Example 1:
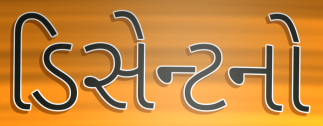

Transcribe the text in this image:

ડિસેન્ટનો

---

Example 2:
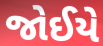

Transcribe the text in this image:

જોઈયે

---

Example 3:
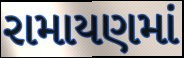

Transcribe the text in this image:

રામાયણમાં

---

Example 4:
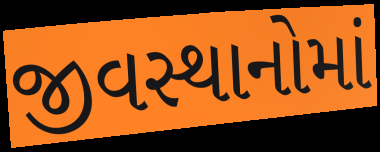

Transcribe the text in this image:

જીવસ્થાનોમાં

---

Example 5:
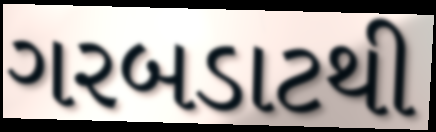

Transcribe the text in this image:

ગરબડાટથી